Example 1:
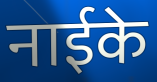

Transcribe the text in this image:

नाईके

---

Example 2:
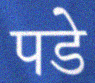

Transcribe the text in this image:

पडे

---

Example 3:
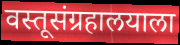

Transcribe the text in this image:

वस्तूसंग्रहालयाला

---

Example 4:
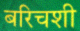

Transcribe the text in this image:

बरिचशी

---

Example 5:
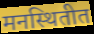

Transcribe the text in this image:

मनस्थितीत